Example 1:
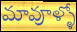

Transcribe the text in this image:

మావూళ్ళో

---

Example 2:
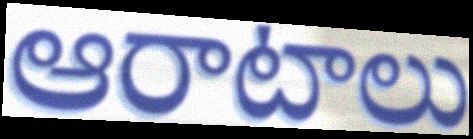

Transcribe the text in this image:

ఆరాటాలు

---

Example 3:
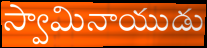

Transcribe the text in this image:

స్వామినాయుడు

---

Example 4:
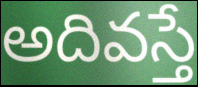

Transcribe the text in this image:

అదివస్తే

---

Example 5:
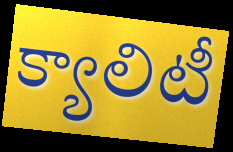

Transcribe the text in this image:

క్యాలిటీ